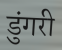
डुंगरी